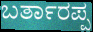
ಬರ್ತಾರಪ್ಪ